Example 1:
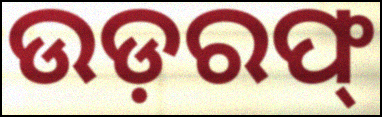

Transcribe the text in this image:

ଉଡ଼ରଫ୍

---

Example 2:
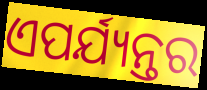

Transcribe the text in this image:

ଏପର୍ଯ୍ୟନ୍ତର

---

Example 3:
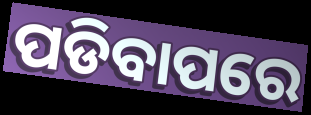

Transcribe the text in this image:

ପଡିବାପରେ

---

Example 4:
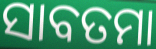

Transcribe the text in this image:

ସାବତମା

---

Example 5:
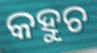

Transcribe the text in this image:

କହୁଚ